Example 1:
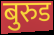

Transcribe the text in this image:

बुरुड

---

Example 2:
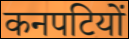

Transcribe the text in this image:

कनपटियों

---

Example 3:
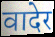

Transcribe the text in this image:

वादेर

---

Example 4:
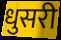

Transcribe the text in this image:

धुसरी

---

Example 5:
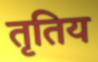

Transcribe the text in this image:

तृतिय